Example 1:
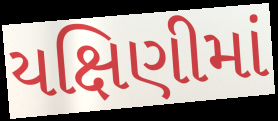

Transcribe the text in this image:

યક્ષિણીમાં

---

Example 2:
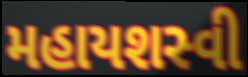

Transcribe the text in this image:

મહાયશસ્વી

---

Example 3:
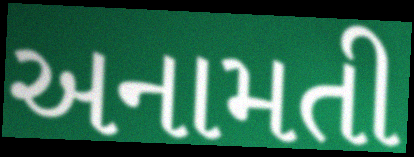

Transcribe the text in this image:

અનામતી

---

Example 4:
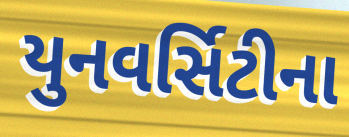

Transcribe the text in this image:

યુનવર્સિટીના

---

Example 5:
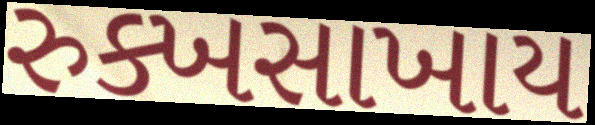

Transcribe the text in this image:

રુક્ખસાખાય